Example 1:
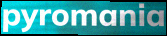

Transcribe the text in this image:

pyromania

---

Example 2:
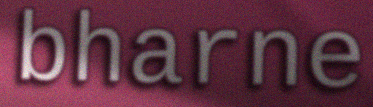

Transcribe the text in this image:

bharne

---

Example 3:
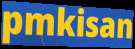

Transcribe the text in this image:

pmkisan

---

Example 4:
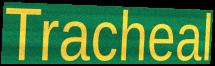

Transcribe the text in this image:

Tracheal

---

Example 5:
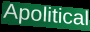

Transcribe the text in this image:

Apolitical